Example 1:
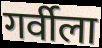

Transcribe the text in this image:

गर्वीला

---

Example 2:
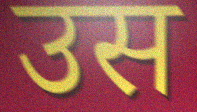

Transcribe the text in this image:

उस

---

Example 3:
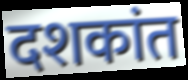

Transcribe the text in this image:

दशकांत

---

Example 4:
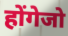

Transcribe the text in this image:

होंगेजो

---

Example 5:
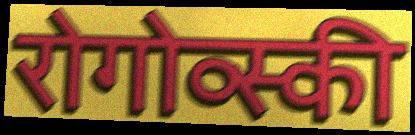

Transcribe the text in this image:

रोगोव्स्की